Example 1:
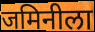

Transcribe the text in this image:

जमिनीला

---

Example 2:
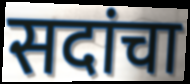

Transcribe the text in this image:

सदांचा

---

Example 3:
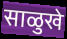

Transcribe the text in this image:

साळुखे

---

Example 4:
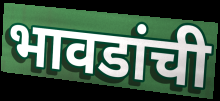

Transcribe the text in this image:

भावडांची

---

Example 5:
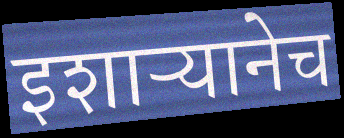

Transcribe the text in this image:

इशाऱ्यानेच